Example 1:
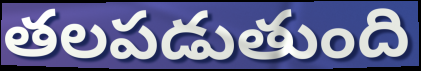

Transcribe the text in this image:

తలపడుతుంది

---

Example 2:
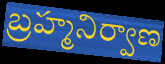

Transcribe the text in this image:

బ్రహ్మనిర్వాణ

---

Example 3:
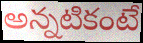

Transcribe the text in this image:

అన్నటికంటే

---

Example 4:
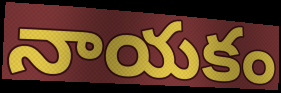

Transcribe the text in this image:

నాయకం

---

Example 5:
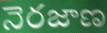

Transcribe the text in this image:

నెరజాణ